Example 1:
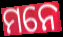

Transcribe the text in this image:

ମନେ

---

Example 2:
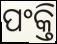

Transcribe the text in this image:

ପଂକ୍ତି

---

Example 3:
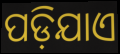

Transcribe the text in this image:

ପଡ଼ିଯାଏ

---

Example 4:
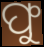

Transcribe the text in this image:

ଫୁ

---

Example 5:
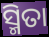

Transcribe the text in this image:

ସ୍ମିତା